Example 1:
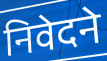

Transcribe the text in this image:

निवेदने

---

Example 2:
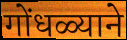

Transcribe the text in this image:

गोंधळ्याने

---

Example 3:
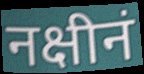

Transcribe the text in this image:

नक्षीनं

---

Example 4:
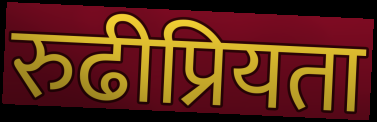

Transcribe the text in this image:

रुढीप्रियता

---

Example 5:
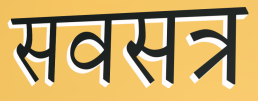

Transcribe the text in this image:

सवसत्र